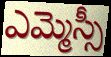
ఎమ్మెస్సీ